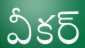
వీకర్